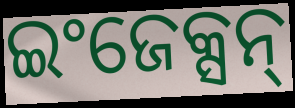
ଇଂଜେକ୍ସନ୍